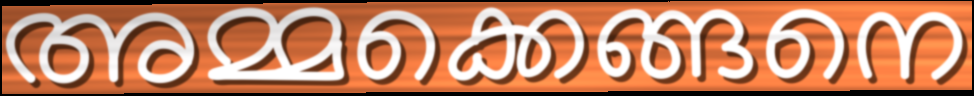
അമ്മക്കെങ്ങനെ